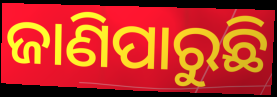
ଜାଣିପାରୁଛି